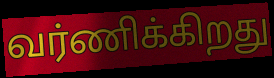
வர்ணிக்கிறது